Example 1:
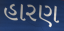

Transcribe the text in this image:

હારણ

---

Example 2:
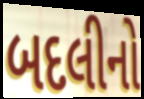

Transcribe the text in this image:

બદલીનો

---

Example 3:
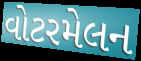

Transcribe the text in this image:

વોટરમેલન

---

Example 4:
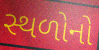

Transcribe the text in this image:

સ્થળોનો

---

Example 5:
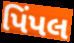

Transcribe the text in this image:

પિંપલ